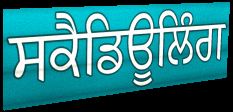
ਸਕੈਡਿਊਲਿੰਗ